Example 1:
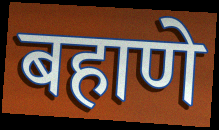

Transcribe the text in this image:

बहाणे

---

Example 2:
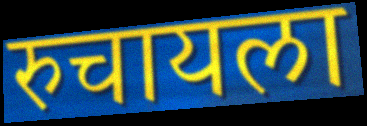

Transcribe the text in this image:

रुचायला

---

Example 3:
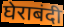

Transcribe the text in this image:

घेराबंदी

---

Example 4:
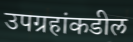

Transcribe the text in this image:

उपग्रहांकडील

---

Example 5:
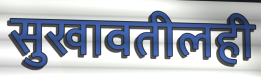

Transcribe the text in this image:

सुखावतीलही